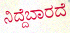
ನಿದ್ದೆಬಾರದೆ